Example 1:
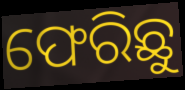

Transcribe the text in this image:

ଫେରିଛୁ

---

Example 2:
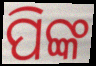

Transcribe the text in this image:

ପିଙ୍କ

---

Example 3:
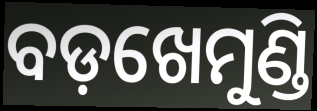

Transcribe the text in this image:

ବଡ଼ଖେମୁଣ୍ଡି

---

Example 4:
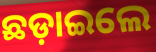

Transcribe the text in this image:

ଛଡ଼ାଇଲେ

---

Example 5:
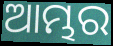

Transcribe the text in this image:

ଆମ୍ଭର